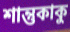
শান্তুকাকু